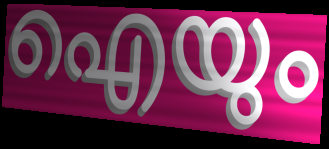
ഐയും